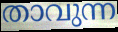
താവുന്ന